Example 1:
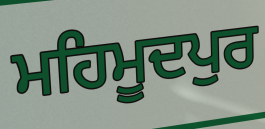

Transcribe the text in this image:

ਮਹਿਮੂਦਪੁਰ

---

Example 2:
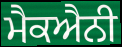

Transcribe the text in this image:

ਮੈਕਐਨੀ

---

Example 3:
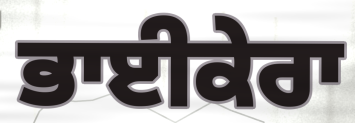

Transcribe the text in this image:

ਭਾਈਕੇਰਾ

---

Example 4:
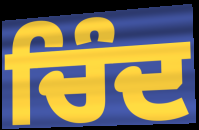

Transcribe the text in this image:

ਚਿੰਦ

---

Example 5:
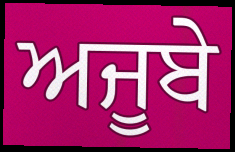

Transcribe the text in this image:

ਅਜੂਬੇ